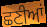
ਛਣੀਆਂ